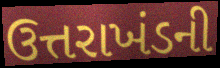
ઉત્તરાખંડની